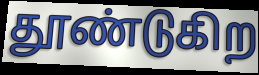
தூண்டுகிற